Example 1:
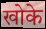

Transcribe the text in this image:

खोके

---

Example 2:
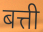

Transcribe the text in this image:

बत्ती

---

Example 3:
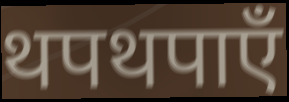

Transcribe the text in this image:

थपथपाएँ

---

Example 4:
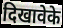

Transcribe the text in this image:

दिखावेके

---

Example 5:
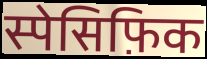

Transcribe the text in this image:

स्पेसिफ़िक